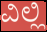
ವಿಲ್ಲಿ